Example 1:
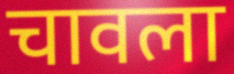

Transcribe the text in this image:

चावला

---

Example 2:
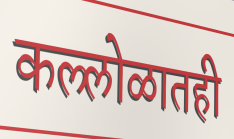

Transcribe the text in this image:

कल्लोळातही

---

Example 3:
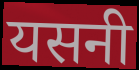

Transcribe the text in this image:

यसनी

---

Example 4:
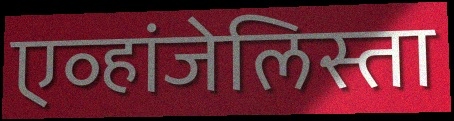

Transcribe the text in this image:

एव्हांजेलिस्ता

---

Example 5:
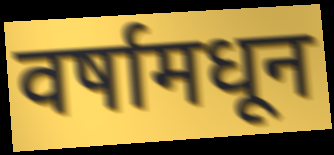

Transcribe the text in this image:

वर्षामधून